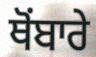
ਥੋਂਬਾਰੇ